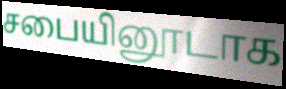
சபையினூடாக